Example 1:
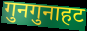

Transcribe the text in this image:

गुनगुनाहट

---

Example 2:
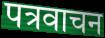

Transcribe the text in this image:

पत्रवाचन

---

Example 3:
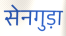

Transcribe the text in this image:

सेनगुड़ा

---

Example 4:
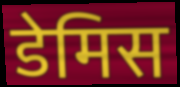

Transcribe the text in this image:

डेमिस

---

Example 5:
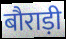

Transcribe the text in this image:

बौराड़ी